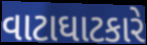
વાટાઘાટકારે